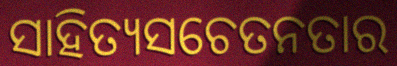
ସାହିତ୍ୟସଚେତନତାର